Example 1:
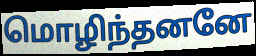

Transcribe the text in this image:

மொழிந்தனனே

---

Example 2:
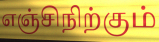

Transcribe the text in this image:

எஞ்சிநிற்கும்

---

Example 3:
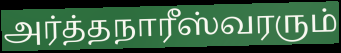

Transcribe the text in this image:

அர்த்தநாரீஸ்வரரும்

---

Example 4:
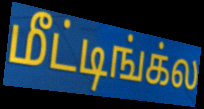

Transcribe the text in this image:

மீட்டிங்க்ல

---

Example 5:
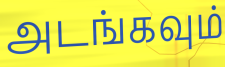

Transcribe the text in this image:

அடங்கவும்